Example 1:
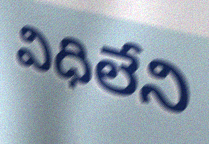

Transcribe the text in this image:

విధిలేని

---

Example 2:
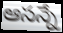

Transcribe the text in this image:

ఆసన్నే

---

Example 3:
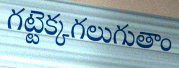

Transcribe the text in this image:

గట్టెక్కగలుగుతాం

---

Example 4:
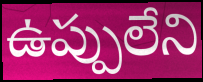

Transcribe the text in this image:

ఉప్పులేని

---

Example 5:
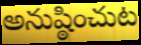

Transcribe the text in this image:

అనుష్ఠించుట